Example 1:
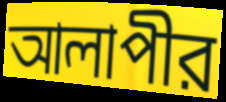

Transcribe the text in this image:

আলাপীর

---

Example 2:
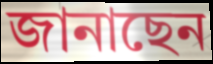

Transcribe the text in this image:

জানাছেন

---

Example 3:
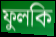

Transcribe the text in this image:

ফুলকি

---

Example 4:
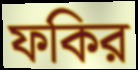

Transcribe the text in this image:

ফকির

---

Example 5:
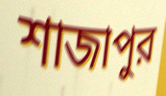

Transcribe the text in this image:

শাজাপুর